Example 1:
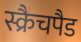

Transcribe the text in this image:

स्क्रैचपैड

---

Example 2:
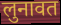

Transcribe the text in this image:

लुनावत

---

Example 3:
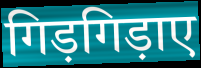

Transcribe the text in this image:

गिड़गिड़ाए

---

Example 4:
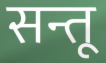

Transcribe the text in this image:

सन्तू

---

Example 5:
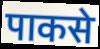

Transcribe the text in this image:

पाकसे